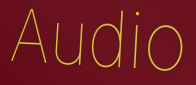
Audio